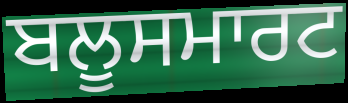
ਬਲੂਸਮਾਰਟ